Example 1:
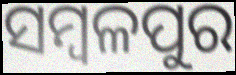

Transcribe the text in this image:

ସମ୍ବଳପୁର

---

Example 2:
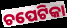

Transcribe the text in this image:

ଚପେଟିକା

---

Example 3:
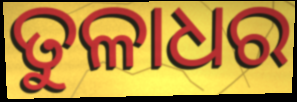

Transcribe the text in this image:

ତୁଳାଧର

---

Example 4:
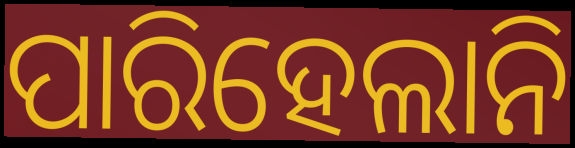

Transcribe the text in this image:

ପାରିହେଲାନି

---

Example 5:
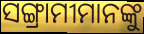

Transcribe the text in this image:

ସଙ୍ଗ୍ରାମୀମାନଙ୍କୁ